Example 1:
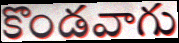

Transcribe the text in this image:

కొండవాగు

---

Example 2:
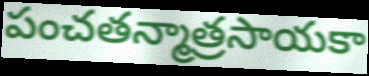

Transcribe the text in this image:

పంచతన్మాత్రసాయకా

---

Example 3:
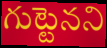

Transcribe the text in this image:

గుట్టెనని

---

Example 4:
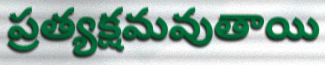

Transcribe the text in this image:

ప్రత్యక్షమవుతాయి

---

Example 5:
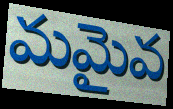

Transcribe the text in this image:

మమైవ